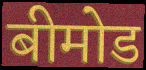
बीमोड